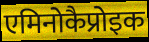
एमिनोकैप्रोइक